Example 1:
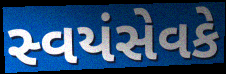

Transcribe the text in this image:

સ્વયંસેવકે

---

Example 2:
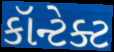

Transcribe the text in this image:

કૉન્ટેક્ટ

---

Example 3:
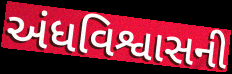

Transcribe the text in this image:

અંધવિશ્વાસની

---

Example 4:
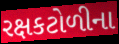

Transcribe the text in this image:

રક્ષકટોળીના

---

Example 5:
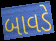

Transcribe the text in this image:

બાવડે